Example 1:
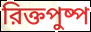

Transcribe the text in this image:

রিক্তপুষ্প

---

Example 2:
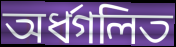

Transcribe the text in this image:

অর্ধগলিত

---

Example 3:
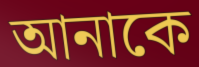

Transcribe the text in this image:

আনাকে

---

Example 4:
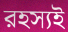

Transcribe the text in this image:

রহস্যই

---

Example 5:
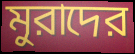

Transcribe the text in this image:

মুরাদের